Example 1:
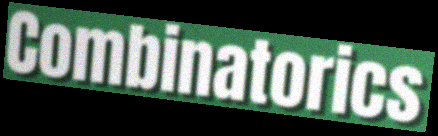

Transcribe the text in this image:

Combinatorics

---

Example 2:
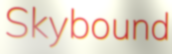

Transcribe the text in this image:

Skybound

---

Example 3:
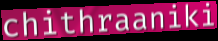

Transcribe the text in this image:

chithraaniki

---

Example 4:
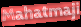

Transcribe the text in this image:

Mahatmaji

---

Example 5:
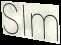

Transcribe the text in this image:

Slm